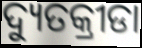
ଦ୍ୟୁତକ୍ରୀଡା